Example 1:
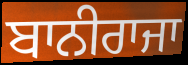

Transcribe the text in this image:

ਬਾਨੀਰਾਜਾ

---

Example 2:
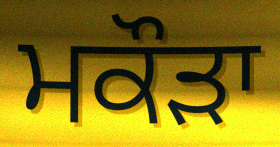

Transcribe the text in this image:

ਮਕੌੜਾ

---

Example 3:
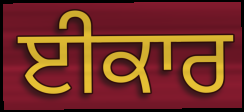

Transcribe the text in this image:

ਈਕਾਰ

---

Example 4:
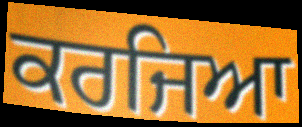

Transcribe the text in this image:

ਕਰਜਿਆ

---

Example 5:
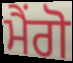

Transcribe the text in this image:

ਮੈਂਗੋ